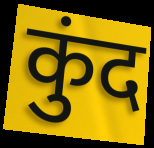
कुंद